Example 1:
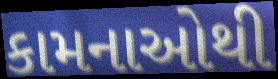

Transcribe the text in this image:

કામનાઓથી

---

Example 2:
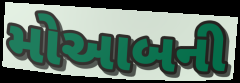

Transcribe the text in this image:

મોઆબની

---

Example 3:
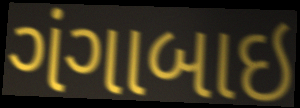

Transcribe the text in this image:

ગંગાબાઇ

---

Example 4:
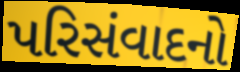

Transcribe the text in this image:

પરિસંવાદનો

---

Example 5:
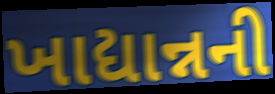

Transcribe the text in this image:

ખાદ્યાન્નની